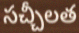
సచ్చీలత